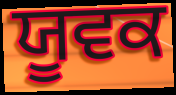
ਯੂਵਕ